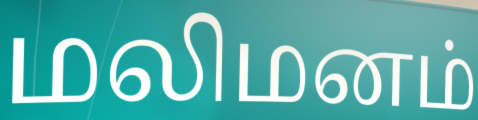
மலிமனம்